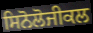
ਸਿਨੋਲੋਜੀਕਲ